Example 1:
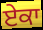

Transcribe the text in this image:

ਏਕਾ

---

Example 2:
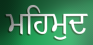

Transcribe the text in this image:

ਮਹਿਮੁਦ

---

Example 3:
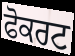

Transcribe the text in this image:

ਫੋਕਰਟ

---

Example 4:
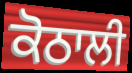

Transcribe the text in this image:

ਕੋਠਾਲੀ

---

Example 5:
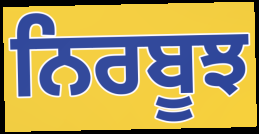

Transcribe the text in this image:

ਨਿਰਬੂਝ